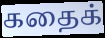
கதைக்